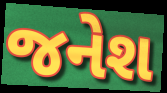
જનેશ